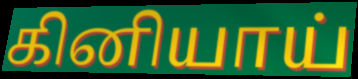
கினியாய்